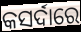
କସର୍ଦାରେ